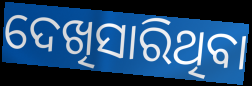
ଦେଖିସାରିଥିବା